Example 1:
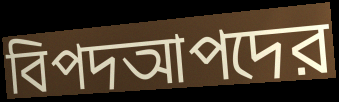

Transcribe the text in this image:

বিপদআপদের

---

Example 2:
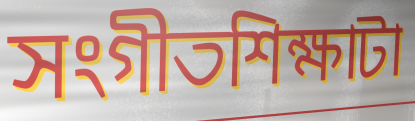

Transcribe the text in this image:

সংগীতশিক্ষাটা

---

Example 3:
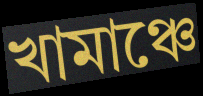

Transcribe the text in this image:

খামাঞ্চে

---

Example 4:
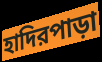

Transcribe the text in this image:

হাদিরপাড়া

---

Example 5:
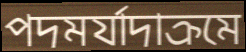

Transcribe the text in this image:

পদমর্যাদাক্রমে